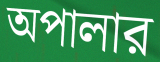
অপালার